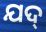
ଯଦ୍